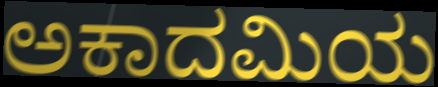
ಅಕಾದಮಿಯ